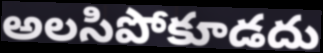
అలసిపోకూడదు